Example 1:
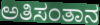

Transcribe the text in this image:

ಅತಿಸಂತಾನ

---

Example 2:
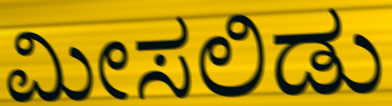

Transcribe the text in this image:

ಮೀಸಲಿಡು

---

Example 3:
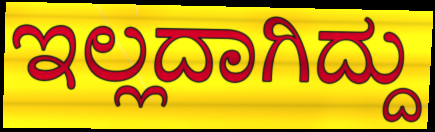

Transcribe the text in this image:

ಇಲ್ಲದಾಗಿದ್ದು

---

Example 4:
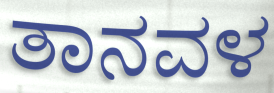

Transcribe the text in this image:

ತಾನವಳ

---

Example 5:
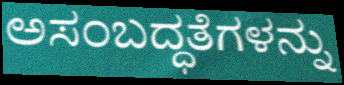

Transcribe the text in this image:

ಅಸಂಬದ್ಧತೆಗಳನ್ನು